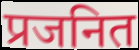
प्रजनित